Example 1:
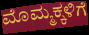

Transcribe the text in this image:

ಮೊಮ್ಮಕ್ಕಳಿಗೆ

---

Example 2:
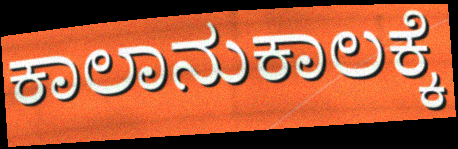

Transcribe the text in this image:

ಕಾಲಾನುಕಾಲಕ್ಕೆ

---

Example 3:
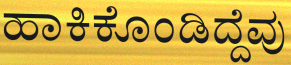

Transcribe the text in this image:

ಹಾಕಿಕೊಂಡಿದ್ದೆವು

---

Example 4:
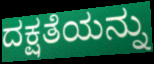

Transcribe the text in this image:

ದಕ್ಷತೆಯನ್ನು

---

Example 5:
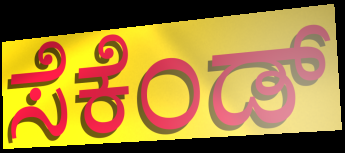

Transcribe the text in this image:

ಸೆಕೆಂಡ್